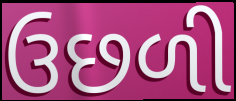
ઉછળી